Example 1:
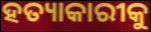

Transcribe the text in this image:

ହତ୍ୟାକାରୀକୁ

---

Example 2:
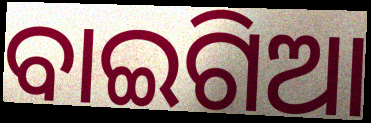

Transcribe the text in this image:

ବାଇଗିଆ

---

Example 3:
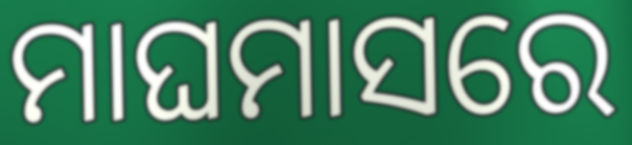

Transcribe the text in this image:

ମାଘମାସରେ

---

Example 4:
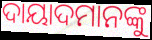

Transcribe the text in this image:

ଦାୟାଦମାନଙ୍କୁ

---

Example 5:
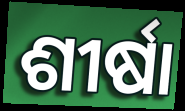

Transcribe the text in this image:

ଶୀର୍ଷା